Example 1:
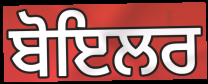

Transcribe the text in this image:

ਬੋਇਲਰ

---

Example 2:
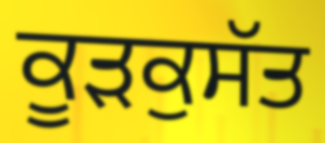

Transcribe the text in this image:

ਕੂੜਕੁਸੱਤ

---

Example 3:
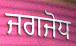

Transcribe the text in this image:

ਜਗਜੋਧ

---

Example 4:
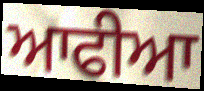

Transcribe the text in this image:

ਆਫੀਆ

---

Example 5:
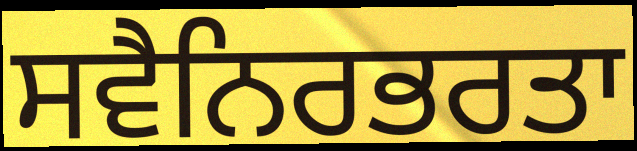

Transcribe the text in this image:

ਸਵੈਨਿਰਭਰਤਾ